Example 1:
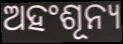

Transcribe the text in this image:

ଅହଂଶୂନ୍ୟ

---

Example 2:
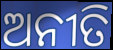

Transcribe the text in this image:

ଅନୀତି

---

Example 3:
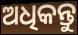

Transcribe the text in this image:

ଅଧିକନ୍ତୁ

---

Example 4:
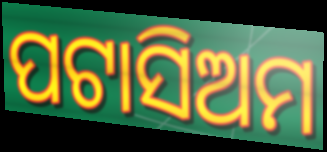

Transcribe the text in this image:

ପଟାସିଅମ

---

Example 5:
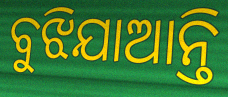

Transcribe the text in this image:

ବୁଝିଯାଆନ୍ତି